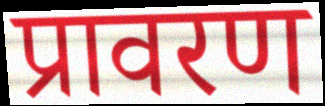
प्रावरण